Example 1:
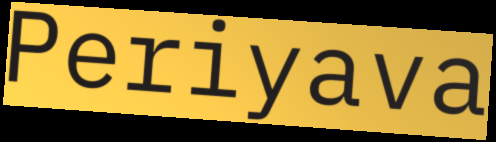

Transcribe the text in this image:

Periyava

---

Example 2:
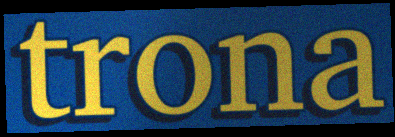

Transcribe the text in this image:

trona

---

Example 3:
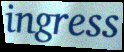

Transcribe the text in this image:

ingress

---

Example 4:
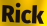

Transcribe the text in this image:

Rick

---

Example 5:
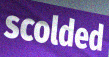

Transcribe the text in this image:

scolded